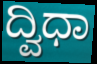
ದ್ವಿಧಾ